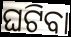
ଘଟିବା